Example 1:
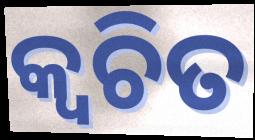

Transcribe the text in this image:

କ୍ୱଚିତ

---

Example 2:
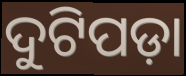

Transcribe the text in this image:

ଦୁଟିପଡ଼ା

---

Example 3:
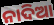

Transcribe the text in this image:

ନାଦିଆ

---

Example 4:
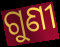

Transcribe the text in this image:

ଗୁଣୀ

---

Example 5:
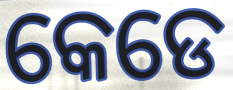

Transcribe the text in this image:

କେଡେ